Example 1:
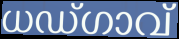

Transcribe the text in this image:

ധഡ്ഗാവ്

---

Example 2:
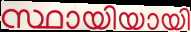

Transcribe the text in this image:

സ്ഥായിയായി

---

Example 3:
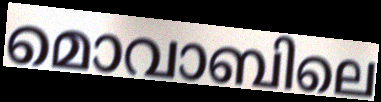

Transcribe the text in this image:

മൊവാബിലെ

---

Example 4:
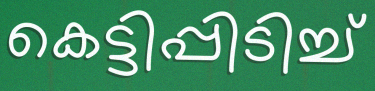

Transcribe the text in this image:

കെട്ടിപ്പിടിച്ച്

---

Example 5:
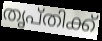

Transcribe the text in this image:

തൃപ്തിക്ക്